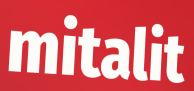
mitalit